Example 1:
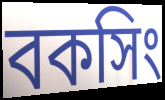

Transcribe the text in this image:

বকসিং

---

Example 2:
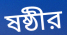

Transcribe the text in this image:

ষষ্ঠীর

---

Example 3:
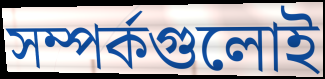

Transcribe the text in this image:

সম্পর্কগুলোই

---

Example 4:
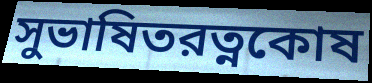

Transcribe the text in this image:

সুভাষিতরত্নকোষ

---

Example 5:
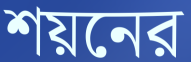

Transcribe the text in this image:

শয়নের